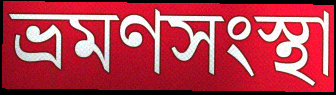
ভ্রমণসংস্থা